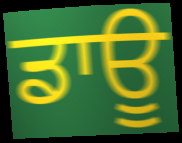
ਡਾਊ